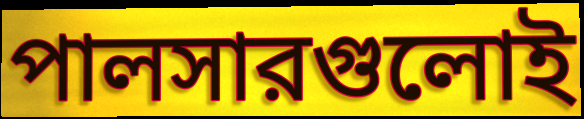
পালসারগুলোই